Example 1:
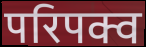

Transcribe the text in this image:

परिपक्व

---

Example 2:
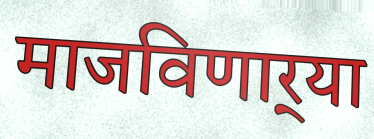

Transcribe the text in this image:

माजविणार्या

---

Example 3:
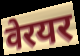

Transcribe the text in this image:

वेरयर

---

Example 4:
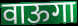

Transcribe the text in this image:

वाऊगा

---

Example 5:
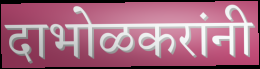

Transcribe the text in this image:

दाभोळकरांनी